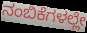
ನಂಬಿಕೆಗಳಲ್ಲೇ